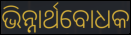
ଭିନ୍ନାର୍ଥବୋଧକ